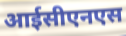
आईसीएनएस